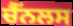
ਚੈੱਨਲਸ